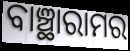
ବାଞ୍ଛାରାମର